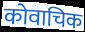
कोवाचिक